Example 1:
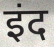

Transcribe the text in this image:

इंद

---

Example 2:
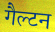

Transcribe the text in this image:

गैल्टन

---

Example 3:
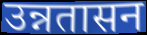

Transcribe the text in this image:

उन्नतासन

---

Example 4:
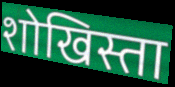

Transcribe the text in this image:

शोखिस्ता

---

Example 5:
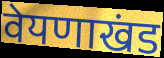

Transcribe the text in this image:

वेयणाखंड